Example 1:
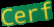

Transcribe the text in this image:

Cerf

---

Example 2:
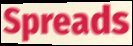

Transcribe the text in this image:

Spreads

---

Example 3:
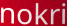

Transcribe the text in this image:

nokri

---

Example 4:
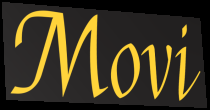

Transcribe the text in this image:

Movi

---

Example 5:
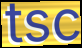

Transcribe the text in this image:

tsc